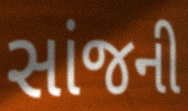
સાંજની